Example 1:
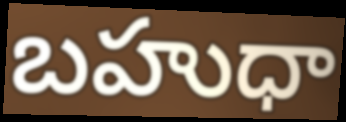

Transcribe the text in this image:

బహుధా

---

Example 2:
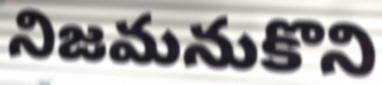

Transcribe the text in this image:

నిజమనుకొని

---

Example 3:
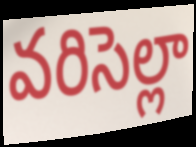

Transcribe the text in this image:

వరిసెల్లా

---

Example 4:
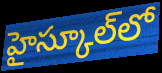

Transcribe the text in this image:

హైస్కూల్‌లో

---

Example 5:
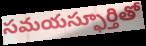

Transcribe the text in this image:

సమయస్ఫూర్తితో